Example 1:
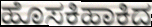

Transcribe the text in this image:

ಹೊಸಕಿಹಾಕಿದ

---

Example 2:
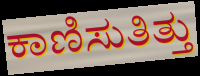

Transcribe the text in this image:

ಕಾಣಿಸುತಿತ್ತು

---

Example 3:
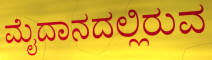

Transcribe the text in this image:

ಮೈದಾನದಲ್ಲಿರುವ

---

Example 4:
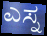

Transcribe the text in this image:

ಎಸ್ನ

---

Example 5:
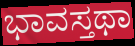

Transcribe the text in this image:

ಭಾವಸ್ತಥಾ